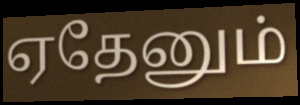
ஏதேனும்